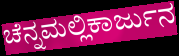
ಚೆನ್ನಮಲ್ಲಿಕಾರ್ಜುನ